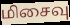
மிசைவு